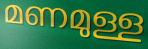
മണമുള്ള